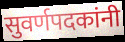
सुवर्णपदकांनी